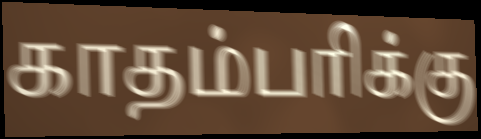
காதம்பரிக்கு